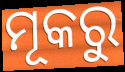
ମୂକରୁ